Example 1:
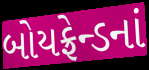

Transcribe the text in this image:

બોયફ્રેન્ડનાં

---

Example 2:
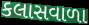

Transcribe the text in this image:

કલાસવાળા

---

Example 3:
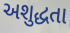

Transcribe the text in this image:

અશુદ્ધતા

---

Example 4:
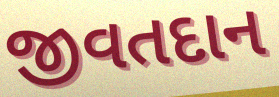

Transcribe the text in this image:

જીવતદાન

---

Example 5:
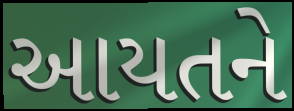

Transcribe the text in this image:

આયતને